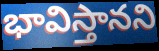
భావిస్తానని